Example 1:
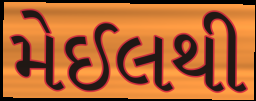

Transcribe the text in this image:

મેઈલથી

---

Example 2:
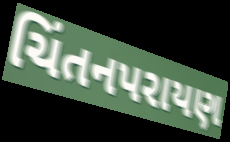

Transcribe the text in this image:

ચિંતનપરાયણ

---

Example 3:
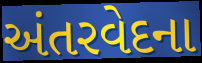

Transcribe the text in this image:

અંતરવેદના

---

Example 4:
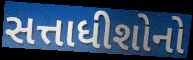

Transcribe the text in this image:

સત્તાધીશોનો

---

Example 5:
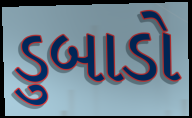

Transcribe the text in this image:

ડુબાડો